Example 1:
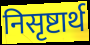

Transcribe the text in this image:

निसृष्टार्थ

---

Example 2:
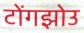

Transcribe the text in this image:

टोंगझोउ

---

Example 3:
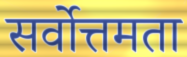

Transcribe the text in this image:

सर्वोत्तमता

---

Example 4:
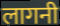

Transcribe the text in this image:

लागनी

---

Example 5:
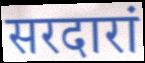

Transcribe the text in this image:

सरदारां